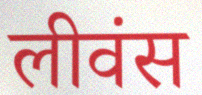
लीवंस